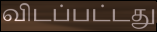
விடப்பட்டது